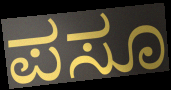
ಪಸೂ